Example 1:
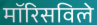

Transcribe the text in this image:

मॉरिसविले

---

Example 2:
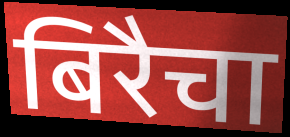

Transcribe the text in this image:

बिरैचा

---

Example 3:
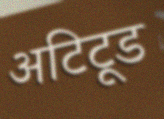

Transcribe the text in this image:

अटिटूड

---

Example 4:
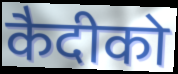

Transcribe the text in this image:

कैदीको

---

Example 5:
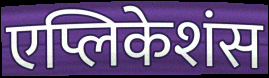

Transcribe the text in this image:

एप्लिकेशंस